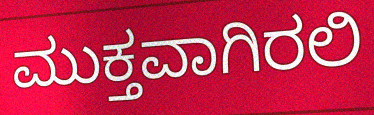
ಮುಕ್ತವಾಗಿರಲಿ